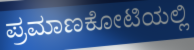
ಪ್ರಮಾಣಕೋಟಿಯಲ್ಲಿ